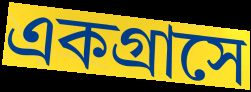
একগ্রাসে